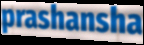
prashansha